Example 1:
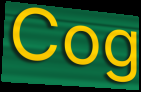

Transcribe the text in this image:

Cog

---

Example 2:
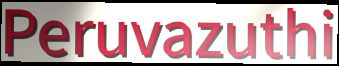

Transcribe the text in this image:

Peruvazuthi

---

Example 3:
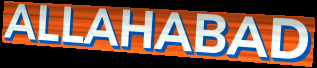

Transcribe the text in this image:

ALLAHABAD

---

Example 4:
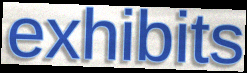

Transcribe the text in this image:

exhibits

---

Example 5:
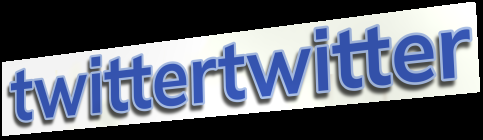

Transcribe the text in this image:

twittertwitter